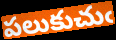
పలుకుచుఁ